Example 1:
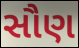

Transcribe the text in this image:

સૌણ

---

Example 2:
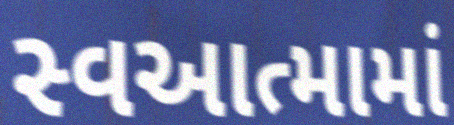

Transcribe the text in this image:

સ્વઆત્મામાં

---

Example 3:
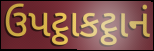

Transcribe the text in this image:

ઉપટ્ઠાકટ્ઠાનં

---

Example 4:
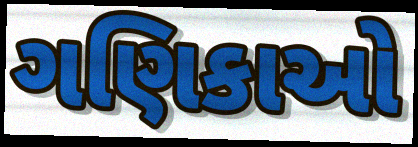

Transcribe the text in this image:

ગણિકાઓ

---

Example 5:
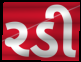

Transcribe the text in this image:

રડી